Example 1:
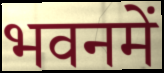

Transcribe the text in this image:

भवनमें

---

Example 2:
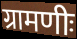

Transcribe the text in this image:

ग्रामणीः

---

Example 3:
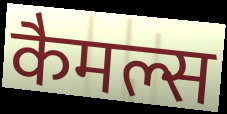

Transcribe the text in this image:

कैमल्स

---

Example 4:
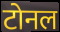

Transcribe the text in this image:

टोनल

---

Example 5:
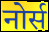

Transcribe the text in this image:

नोर्स